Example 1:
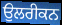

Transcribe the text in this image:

ਉਲਰੀਕਨ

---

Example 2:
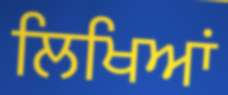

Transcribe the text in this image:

ਲਿਖਿਆਂ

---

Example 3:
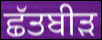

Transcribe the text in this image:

ਛੱਤਬੀੜ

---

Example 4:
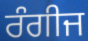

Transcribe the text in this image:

ਰੰਗੀਜ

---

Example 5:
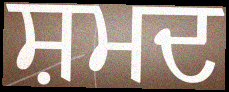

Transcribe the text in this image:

ਸ਼ਮਦ